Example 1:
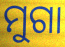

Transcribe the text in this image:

ମୁଗା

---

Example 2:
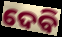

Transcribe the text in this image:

ଦେବି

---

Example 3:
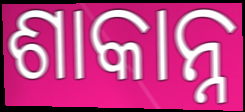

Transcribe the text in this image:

ଶାକାନ୍ନ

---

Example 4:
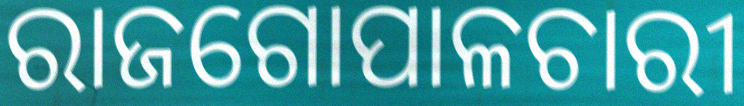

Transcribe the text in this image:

ରାଜଗୋପାଳଚାରୀ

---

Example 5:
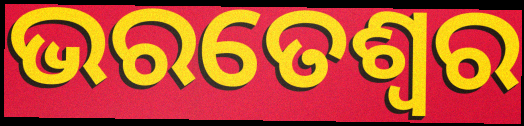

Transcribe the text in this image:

ଭରତେଶ୍ଵର